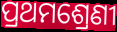
ପ୍ରଥମଶ୍ରେଣୀ